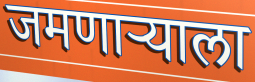
जमणाऱ्याला